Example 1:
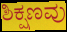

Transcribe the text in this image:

ಶಿಕ್ಷಣವು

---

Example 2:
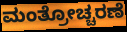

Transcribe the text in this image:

ಮಂತ್ರೋಚ್ಚರಣೆ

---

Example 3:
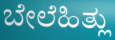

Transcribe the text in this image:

ಬೇಲೆಹಿತ್ಲು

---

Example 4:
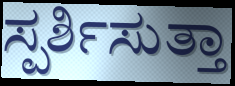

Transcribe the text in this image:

ಸ್ಪರ್ಶಿಸುತ್ತಾ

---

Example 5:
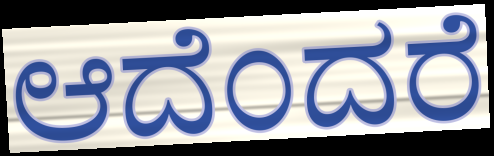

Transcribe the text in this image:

ಆದೆಂದರೆ